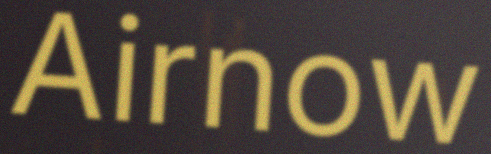
Airnow